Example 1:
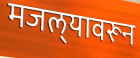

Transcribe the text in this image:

मजल्यावरून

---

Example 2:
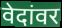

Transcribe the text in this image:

वेदांवर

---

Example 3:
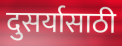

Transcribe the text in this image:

दुसर्यासाठी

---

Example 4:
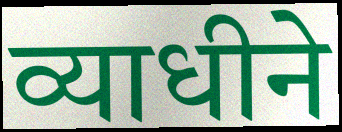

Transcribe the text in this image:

व्याधीने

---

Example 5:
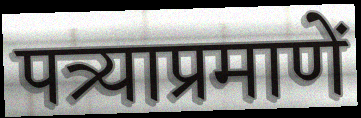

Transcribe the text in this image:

पत्र्याप्रमाणें